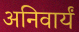
अनिवार्यं